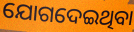
ଯୋଗଦେଇଥିବା